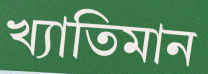
খ্যাতিমান